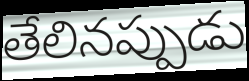
తేలినప్పుడు